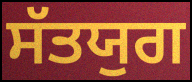
ਸੱਤਯੁਗ